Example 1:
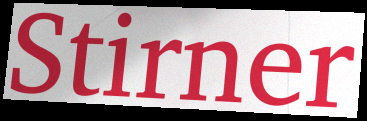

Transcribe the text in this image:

Stirner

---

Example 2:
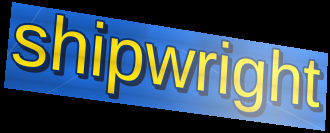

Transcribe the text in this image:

shipwright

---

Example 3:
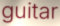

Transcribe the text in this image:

guitar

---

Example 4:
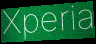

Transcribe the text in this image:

Xperia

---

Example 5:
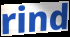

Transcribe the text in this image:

rind